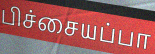
பிச்சையப்பா